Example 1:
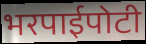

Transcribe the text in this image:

भरपाईपोटी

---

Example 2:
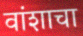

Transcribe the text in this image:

वांशाचा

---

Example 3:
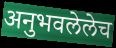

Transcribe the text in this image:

अनुभवलेलेच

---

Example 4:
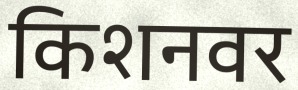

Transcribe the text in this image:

किशनवर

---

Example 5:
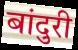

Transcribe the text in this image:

बांदुरी